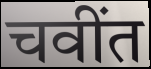
चवींत